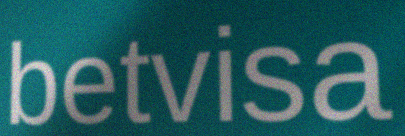
betvisa